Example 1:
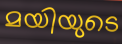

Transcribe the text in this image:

മയിയുടെ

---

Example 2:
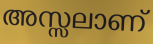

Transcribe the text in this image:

അസ്സലാണ്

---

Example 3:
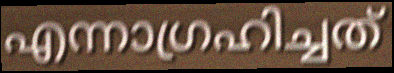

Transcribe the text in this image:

എന്നാഗ്രഹിച്ചത്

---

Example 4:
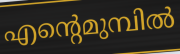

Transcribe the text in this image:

എന്റെമുമ്പിൽ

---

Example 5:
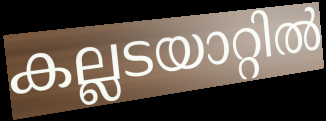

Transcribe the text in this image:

കല്ലടയാറ്റിൽ